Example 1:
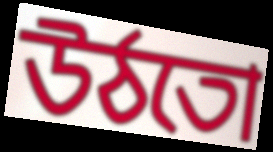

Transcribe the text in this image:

উঠতো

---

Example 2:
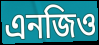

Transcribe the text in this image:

এনজিও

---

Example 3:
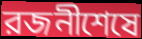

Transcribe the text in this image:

রজনীশেষে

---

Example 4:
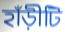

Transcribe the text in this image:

হাঁড়ীটি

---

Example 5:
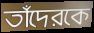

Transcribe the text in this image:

তাঁদেরকে